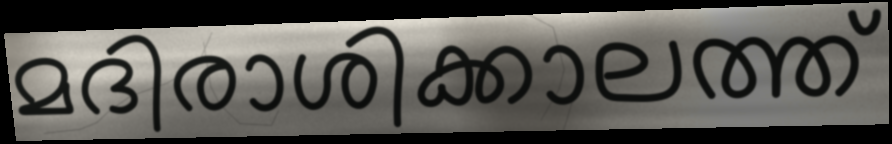
മദിരാശിക്കാലത്ത്